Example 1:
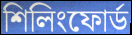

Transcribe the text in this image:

শিলিংফোর্ড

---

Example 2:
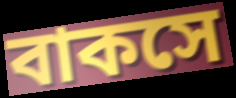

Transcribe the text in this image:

বাকসে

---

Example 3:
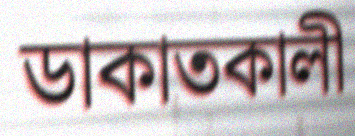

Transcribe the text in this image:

ডাকাতকালী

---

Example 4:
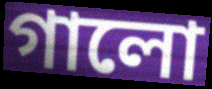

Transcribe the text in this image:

গালো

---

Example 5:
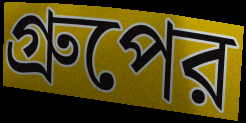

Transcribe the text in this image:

গ্রুপের